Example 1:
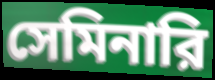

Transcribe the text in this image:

সেমিনারি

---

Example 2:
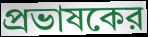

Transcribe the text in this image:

প্রভাষকের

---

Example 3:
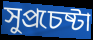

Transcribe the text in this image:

সুপ্রচেষ্টা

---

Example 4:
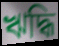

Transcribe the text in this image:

ঋদ্ধি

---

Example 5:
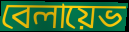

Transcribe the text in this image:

বেলায়েভ